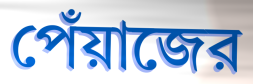
পেঁয়াজের